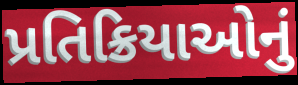
પ્રતિક્રિયાઓનું